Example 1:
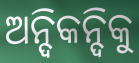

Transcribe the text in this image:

ଅନ୍ଦିକନ୍ଦିକୁ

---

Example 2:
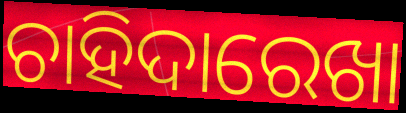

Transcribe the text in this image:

ଚାହିଦାରେଖା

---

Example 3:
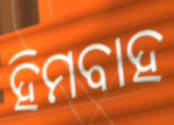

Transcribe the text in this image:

ହିମବାହ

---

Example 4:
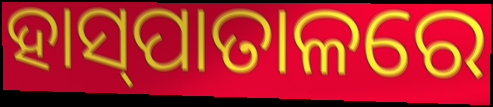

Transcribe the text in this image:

ହାସ୍‌ପାତାଳରେ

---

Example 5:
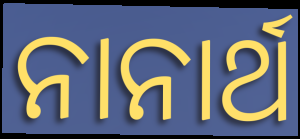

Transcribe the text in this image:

ନାନାର୍ଥ